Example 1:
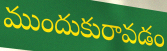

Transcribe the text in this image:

ముందుకురావడం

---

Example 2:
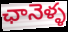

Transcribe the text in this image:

ఛానెళ్ళ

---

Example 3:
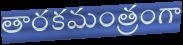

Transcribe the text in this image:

తారకమంత్రంగా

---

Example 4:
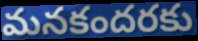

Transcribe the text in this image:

మనకందరకు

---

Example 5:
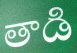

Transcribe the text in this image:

తాడి